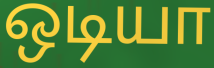
ஒடியா